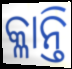
କ୍ଳାନ୍ତି